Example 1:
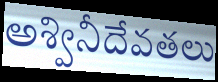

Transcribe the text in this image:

అశ్వినీదేవతలు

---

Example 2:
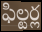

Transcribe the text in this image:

ఫిల్టర్ల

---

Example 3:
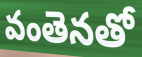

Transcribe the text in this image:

వంతెనతో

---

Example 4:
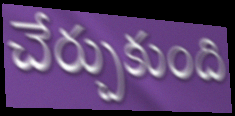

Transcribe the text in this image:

చేర్చుకుంది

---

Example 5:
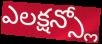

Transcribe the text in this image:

ఎలక్షన్స్లో